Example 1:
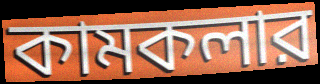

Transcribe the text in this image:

কামকলার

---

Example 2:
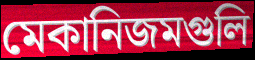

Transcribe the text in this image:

মেকানিজমগুলি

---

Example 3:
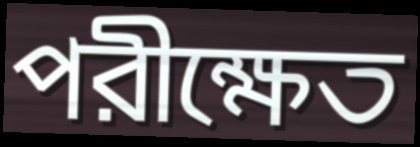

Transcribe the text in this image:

পরীক্ষেত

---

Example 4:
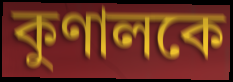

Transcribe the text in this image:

কুণালকে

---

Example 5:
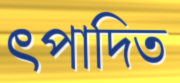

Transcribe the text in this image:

ৎপাদিত